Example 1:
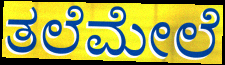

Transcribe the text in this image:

ತಲೆಮೇಲೆ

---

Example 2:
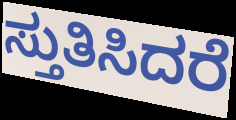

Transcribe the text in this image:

ಸ್ತುತಿಸಿದರೆ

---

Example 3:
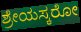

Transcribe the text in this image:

ಶ್ರೇಯಸ್ಕರೋ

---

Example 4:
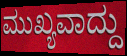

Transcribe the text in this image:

ಮುಖ್ಯವಾದ್ದು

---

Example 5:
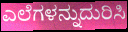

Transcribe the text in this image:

ಎಲೆಗಳನ್ನುದುರಿಸಿ